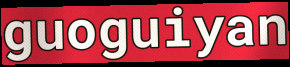
guoguiyan